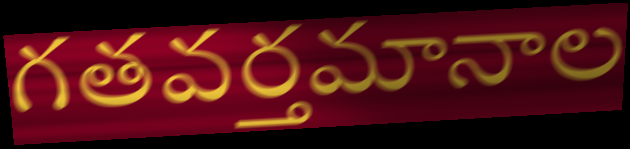
గతవర్తమానాల